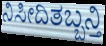
ನಿಸೀದಿತಬ್ಬನ್ತಿ